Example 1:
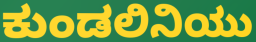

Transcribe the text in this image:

ಕುಂಡಲಿನಿಯು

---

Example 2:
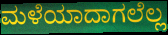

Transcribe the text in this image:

ಮಳೆಯಾದಾಗಲೆಲ್ಲ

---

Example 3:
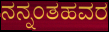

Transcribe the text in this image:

ನನ್ನಂತಹವರ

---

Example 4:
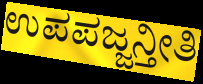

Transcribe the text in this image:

ಉಪಪಜ್ಜನ್ತೀತಿ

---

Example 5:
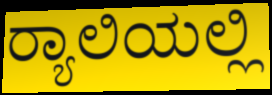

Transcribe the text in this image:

ರ‍್ಯಾಲಿಯಲ್ಲಿ